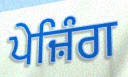
ਪੇਜ਼ਿੰਗ